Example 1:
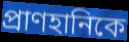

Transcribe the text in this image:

প্রাণহানিকে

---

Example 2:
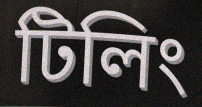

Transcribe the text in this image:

টিলিং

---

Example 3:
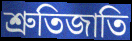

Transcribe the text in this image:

শ্রুতিজাতি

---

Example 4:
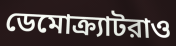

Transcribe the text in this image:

ডেমোক্র্যাটরাও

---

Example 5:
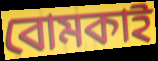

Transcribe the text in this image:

বোমকাই